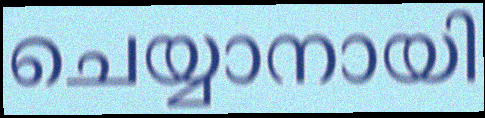
ചെയ്യാനായി